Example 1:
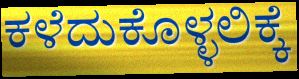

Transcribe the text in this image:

ಕಳೆದುಕೊಳ್ಳಲಿಕ್ಕೆ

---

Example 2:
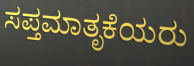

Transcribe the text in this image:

ಸಪ್ತಮಾತೃಕೆಯರು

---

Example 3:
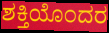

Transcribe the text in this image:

ಶಕ್ತಿಯೊಂದರ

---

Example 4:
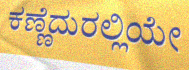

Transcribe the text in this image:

ಕಣ್ಣೆದುರಲ್ಲಿಯೇ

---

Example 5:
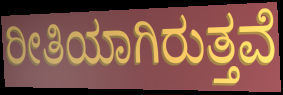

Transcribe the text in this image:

ರೀತಿಯಾಗಿರುತ್ತವೆ